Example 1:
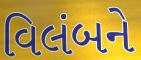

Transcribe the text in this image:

વિલંબને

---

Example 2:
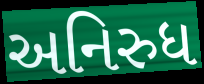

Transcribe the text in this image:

અનિરુધ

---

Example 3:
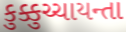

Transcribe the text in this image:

કુક્કુચ્ચાયન્તા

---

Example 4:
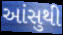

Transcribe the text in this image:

આંસુથી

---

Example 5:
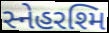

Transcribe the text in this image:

સ્નેહરશ્મિ